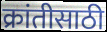
क्रांतीसाठी